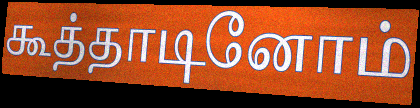
கூத்தாடினோம்